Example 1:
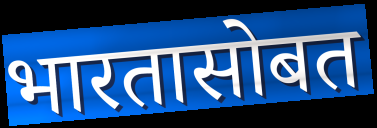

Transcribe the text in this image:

भारतासोबत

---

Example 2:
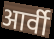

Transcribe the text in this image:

आर्वी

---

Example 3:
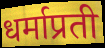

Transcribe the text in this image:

धर्माप्रती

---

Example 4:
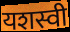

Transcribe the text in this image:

यशस्वी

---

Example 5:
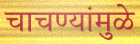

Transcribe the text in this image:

चाचण्यांमुळे